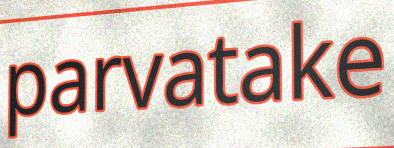
parvatake